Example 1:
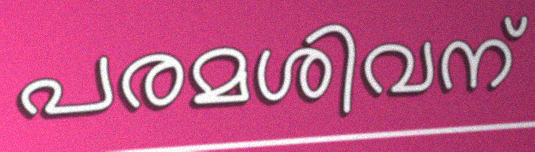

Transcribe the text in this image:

പരമശിവന്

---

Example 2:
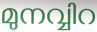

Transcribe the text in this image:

മുനവ്വിറ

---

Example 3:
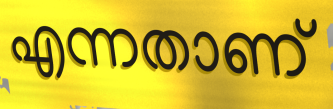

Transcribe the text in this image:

എന്നതാണ്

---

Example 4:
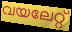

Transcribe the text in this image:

വയലേറ്റ്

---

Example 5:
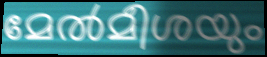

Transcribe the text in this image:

മേൽമീശയും